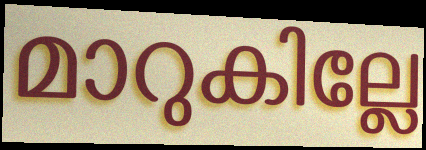
മാറുകില്ലേ